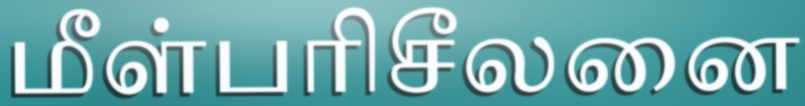
மீள்பரிசீலனை